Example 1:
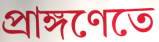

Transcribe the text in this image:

প্রাঙ্গণেতে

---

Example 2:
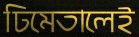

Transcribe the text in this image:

ঢিমেতালেই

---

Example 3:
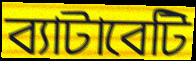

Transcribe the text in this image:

ব্যাটাবেটি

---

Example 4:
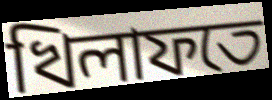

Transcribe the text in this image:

খিলাফতে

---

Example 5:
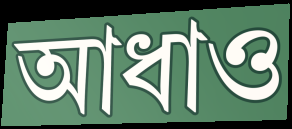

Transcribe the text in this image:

আধাও